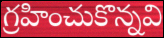
గ్రహించుకొన్నవి